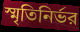
স্মৃতিনির্ভর